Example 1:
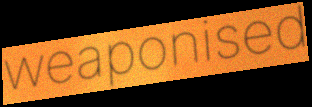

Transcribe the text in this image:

weaponised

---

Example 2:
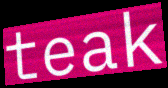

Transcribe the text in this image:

teak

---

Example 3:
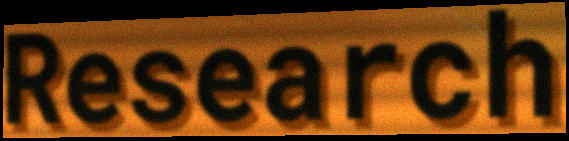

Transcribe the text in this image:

Research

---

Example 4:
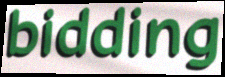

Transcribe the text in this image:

bidding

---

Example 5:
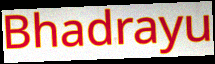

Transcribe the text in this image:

Bhadrayu